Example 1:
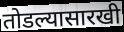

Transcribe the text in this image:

तोडल्यासारखी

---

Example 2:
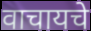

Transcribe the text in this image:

वाचायचे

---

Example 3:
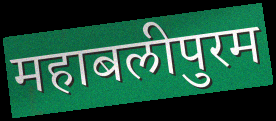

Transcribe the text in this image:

महाबलीपुरम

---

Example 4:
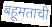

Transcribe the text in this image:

बहूमताची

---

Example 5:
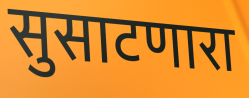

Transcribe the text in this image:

सुसाटणारा